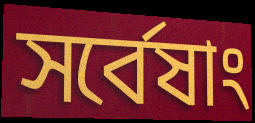
সর্বেষাং